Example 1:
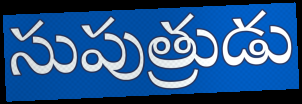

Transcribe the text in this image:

సుపుత్రుడు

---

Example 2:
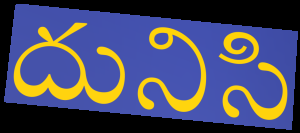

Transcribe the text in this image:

దునిసి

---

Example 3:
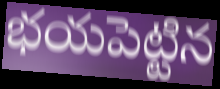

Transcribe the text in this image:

భయపెట్టిన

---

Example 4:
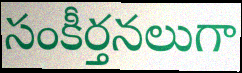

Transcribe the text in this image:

సంకీర్తనలుగా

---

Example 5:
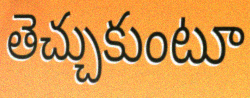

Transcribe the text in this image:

తెచ్చుకుంటూ